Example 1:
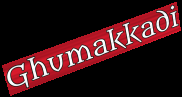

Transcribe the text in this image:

Ghumakkadi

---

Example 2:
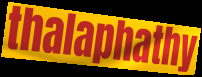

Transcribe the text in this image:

thalaphathy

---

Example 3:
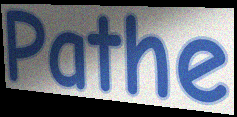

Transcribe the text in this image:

Pathe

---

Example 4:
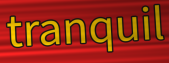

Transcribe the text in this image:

tranquil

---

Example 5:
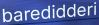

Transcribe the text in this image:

baredidderi